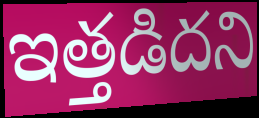
ఇత్తడిదని